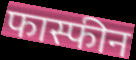
फास्फीन